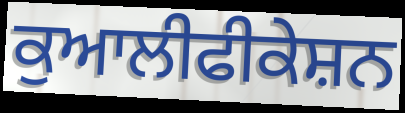
ਕੁਆਲੀਫੀਕੇਸ਼ਨ